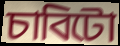
চাবিটো